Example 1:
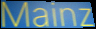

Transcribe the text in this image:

Mainz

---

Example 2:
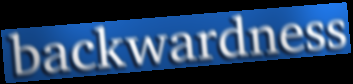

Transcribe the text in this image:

backwardness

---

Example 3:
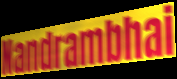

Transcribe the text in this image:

Nandrambhai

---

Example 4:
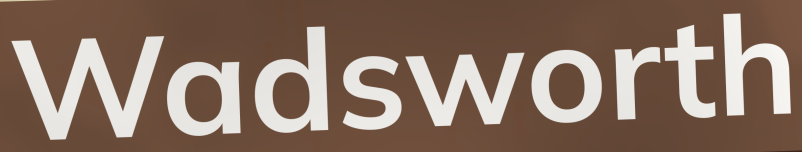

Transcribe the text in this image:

Wadsworth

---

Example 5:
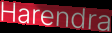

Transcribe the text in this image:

Harendra